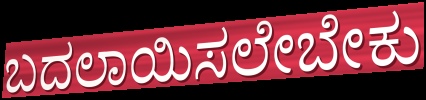
ಬದಲಾಯಿಸಲೇಬೇಕು